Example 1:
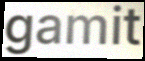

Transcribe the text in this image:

gamit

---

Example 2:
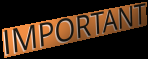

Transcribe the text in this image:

IMPORTANT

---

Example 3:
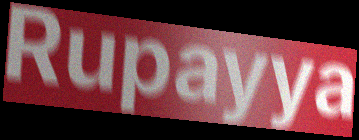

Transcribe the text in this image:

Rupayya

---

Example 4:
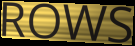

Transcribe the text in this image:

ROWS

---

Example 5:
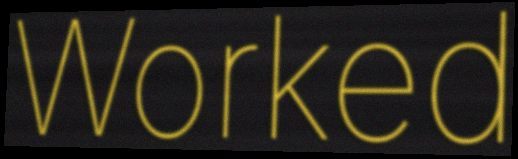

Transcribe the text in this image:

Worked